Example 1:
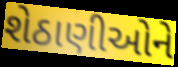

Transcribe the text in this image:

શેઠાણીઓને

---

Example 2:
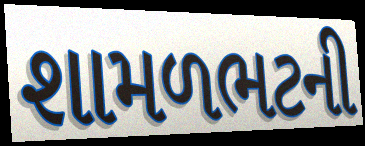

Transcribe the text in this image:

શામળભટની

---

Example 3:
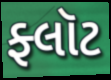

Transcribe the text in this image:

ફ્લૉટ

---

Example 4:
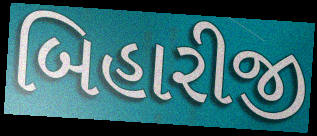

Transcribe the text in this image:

બિહારીજી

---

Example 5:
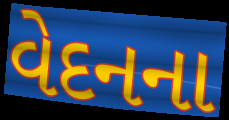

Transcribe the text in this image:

વેદનના